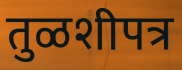
तुळशीपत्र